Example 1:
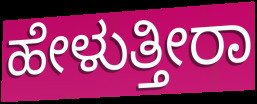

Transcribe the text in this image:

ಹೇಳುತ್ತೀರಾ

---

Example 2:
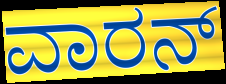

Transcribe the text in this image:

ವಾರನ್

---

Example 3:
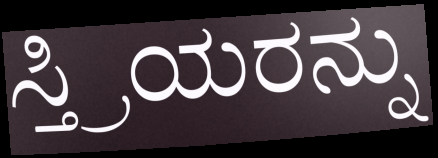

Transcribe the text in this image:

ಸ್ತ್ರಿಯರನ್ನು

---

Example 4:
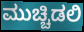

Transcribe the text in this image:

ಮುಚ್ಚಿಡಲಿ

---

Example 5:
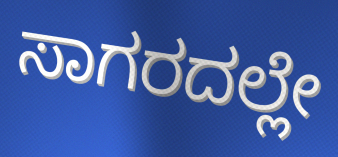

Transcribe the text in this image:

ಸಾಗರದಲ್ಲೇ